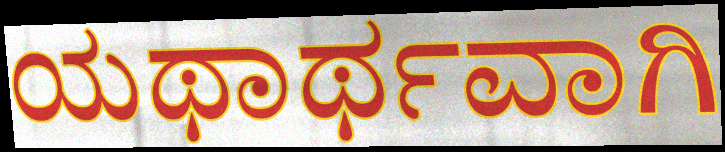
ಯಥಾರ್ಥವಾಗಿ